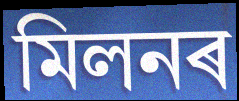
মিলনৰ